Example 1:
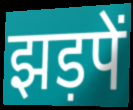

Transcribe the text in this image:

झड़पें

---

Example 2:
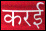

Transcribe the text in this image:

करई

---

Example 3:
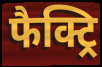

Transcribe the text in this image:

फैक्ट्रि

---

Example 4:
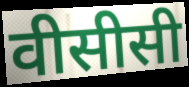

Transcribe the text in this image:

वीसीसी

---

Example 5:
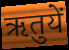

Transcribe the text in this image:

ऋतुयें